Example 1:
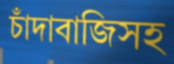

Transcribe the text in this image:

চাঁদাবাজিসহ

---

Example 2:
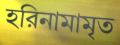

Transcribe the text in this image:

হরিনামামৃত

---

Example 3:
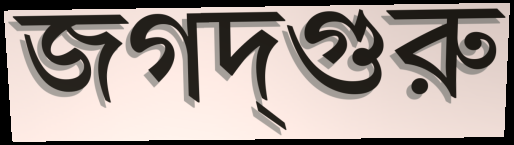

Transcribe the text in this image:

জগদ্‌গুরু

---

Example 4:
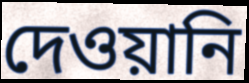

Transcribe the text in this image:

দেওয়ানি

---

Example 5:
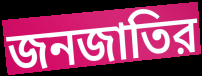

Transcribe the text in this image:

জনজাতির